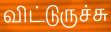
விட்டுருச்சு